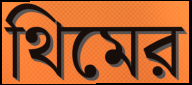
থিমের